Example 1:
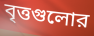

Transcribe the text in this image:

বৃত্তগুলোর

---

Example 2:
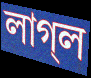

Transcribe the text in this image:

লাগ্‌ল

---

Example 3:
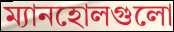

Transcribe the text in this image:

ম্যানহোলগুলো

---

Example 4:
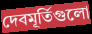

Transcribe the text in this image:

দেবমূর্তিগুলো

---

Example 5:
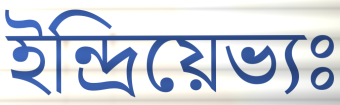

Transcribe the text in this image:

ইন্দ্রিয়েভ্যঃ